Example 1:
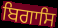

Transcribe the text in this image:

ਬਿਗਾਸਿ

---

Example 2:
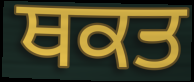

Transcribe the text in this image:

ਥਕਤ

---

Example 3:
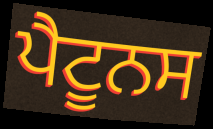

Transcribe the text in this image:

ਪੈਟੂਨਸ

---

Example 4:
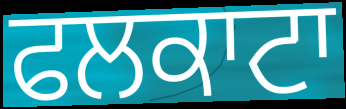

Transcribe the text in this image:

ਫਲਕਾਟਾ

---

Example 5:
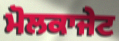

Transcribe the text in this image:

ਮੋਲਕਾਜੇਟ